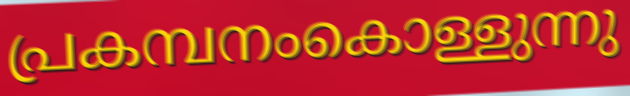
പ്രകമ്പനംകൊള്ളുന്നു